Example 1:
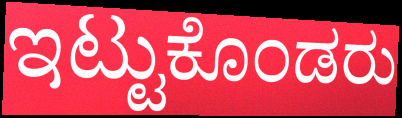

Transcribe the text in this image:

ಇಟ್ಟುಕೊಂಡರು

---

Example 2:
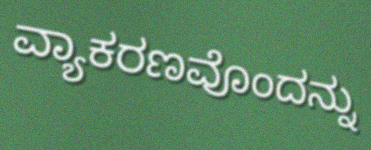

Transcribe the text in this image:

ವ್ಯಾಕರಣವೊಂದನ್ನು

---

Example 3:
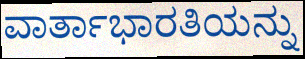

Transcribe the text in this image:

ವಾರ್ತಾಭಾರತಿಯನ್ನು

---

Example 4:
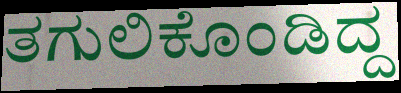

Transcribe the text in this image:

ತಗುಲಿಕೊಂಡಿದ್ದ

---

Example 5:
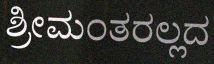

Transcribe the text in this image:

ಶ್ರೀಮಂತರಲ್ಲದ